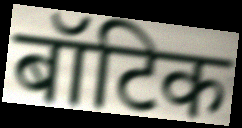
बॉटिक